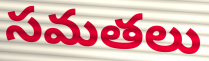
సమతలు